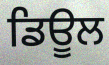
ਡਿਊਲ